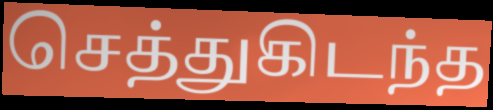
செத்துகிடந்த